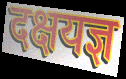
दक्षयज्ञ